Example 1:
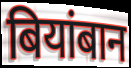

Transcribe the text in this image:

बियांबान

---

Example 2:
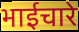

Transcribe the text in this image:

भाईचारे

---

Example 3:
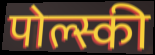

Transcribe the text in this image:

पोल्स्की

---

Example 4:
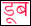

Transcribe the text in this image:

डूब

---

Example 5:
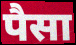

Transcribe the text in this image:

पैसा